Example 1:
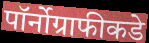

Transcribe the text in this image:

पॉर्नोग्राफीकडे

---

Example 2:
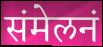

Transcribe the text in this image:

संमेलनं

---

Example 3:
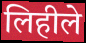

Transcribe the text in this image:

लिहीले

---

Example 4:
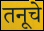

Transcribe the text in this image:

तनूचे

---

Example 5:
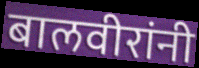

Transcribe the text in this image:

बालवीरांनी